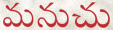
మనుచు